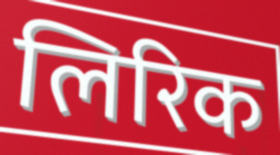
लिरिक